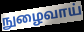
நுழைவாய்